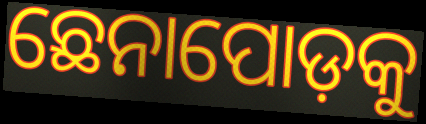
ଛେନାପୋଡ଼କୁ